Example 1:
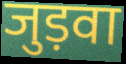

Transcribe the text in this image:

जुड़वा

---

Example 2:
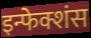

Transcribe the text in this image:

इन्फेक्शंस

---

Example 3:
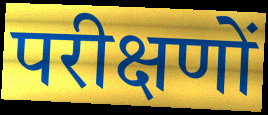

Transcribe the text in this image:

परीक्षणों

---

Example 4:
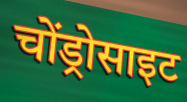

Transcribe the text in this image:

चोंड्रोसाइट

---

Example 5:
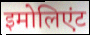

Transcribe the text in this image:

इमोलिएंट